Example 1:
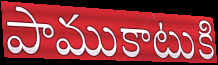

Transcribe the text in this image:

పాముకాటుకి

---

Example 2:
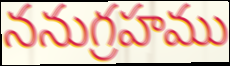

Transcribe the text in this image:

ననుగ్రహము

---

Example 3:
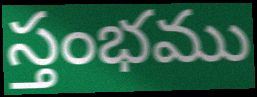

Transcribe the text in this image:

స్తంభము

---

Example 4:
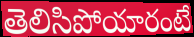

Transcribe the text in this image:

తెలిసిపోయారంటే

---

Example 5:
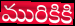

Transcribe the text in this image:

మురికికి